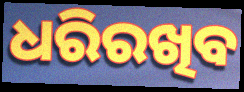
ଧରିରଖିବ